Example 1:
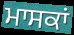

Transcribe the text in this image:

ਮਾਸਕਾਂ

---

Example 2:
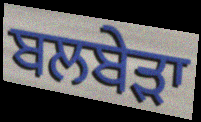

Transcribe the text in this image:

ਬਲਬੇਡ਼ਾ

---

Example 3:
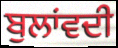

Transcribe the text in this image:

ਬੁਲਾਂਵਦੀ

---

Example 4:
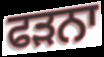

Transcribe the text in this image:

ਫੜਨਾ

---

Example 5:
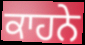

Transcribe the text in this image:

ਕਾਹਨੇ